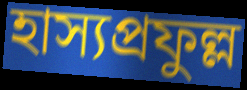
হাস্যপ্রফুল্ল